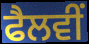
ਫੈਲਵੀਂ